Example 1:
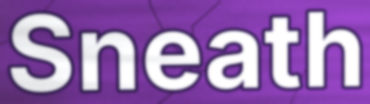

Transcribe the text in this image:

Sneath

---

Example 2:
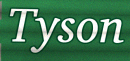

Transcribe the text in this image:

Tyson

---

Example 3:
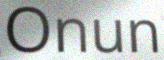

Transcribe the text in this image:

Onun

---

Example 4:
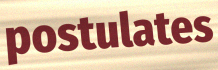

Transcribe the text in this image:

postulates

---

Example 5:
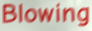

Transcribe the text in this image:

Blowing